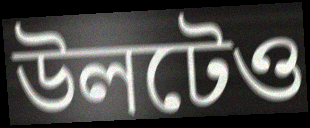
উলটেও